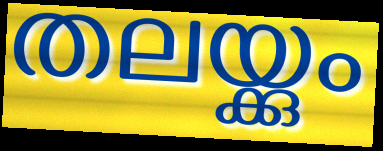
തലയ്ക്കും